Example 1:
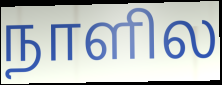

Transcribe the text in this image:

நாளில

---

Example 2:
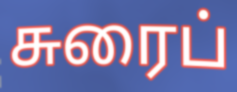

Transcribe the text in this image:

சுரைப்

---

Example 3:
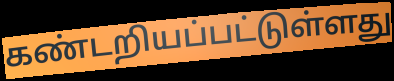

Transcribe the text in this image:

கண்டறியப்பட்டுள்ளது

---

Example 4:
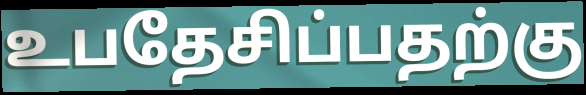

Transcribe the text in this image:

உபதேசிப்பதற்கு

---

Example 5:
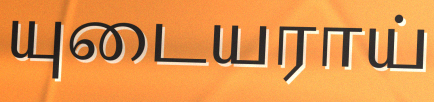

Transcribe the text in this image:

யுடையராய்